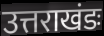
उत्तराखंडः